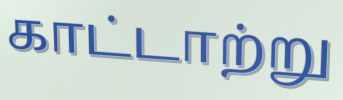
காட்டாற்று